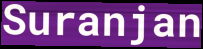
Suranjan